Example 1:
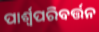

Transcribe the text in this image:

ପାର୍ଶ୍ଵପରିବର୍ତ୍ତନ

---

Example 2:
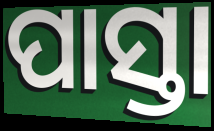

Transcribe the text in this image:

ପାସ୍ତା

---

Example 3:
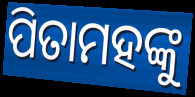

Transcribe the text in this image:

ପିତାମହଙ୍କୁ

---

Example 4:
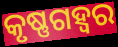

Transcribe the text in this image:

କୃଷ୍ଣଗହ୍ୱର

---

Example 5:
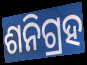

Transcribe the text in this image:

ଶନିଗ୍ରହ